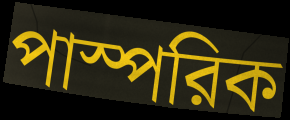
পাস্পরিক